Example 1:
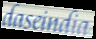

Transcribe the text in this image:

daseindia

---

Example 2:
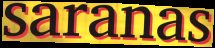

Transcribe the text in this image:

saranas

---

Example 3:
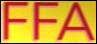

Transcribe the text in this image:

FFA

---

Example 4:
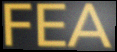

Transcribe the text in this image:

FEA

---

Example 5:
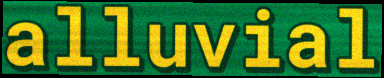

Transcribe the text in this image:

alluvial